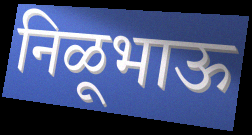
निळूभाऊ